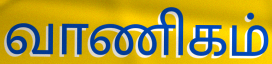
வாணிகம்